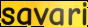
savari